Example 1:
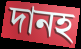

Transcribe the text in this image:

দানহ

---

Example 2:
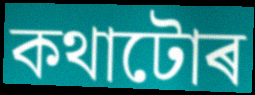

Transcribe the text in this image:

কথাটোৰ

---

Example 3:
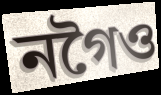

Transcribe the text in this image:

নগৈও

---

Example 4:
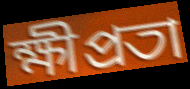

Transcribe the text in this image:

ক্ষীপ্ৰতা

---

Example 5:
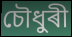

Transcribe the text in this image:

চৌধুৰী